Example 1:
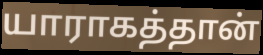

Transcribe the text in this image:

யாராகத்தான்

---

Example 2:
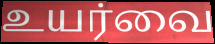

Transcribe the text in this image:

உயர்வை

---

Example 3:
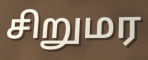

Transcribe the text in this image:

சிறுமர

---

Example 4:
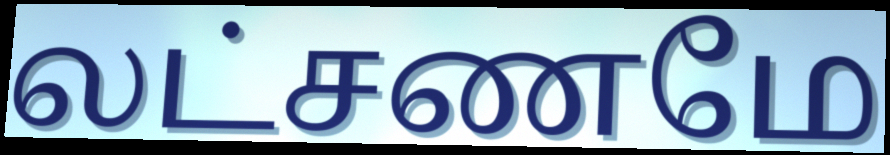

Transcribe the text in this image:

லட்சணமே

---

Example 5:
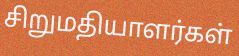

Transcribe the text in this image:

சிறுமதியாளர்கள்